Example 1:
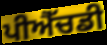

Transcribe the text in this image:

ਪੀਐੱਚਡੀ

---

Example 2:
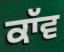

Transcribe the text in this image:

ਕਾੱਵ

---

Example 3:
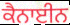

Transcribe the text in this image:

ਕੈਨਾਈਨ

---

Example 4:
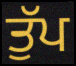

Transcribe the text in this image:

ਤੁੱਪ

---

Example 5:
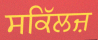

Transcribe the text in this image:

ਸਕਿੱਲਜ਼